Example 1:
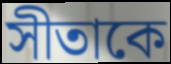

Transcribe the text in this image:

সীতাকে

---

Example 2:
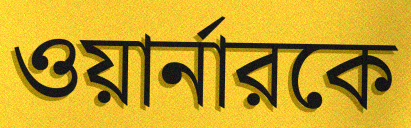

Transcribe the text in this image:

ওয়ার্নারকে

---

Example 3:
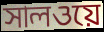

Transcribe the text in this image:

সালওয়ে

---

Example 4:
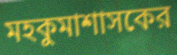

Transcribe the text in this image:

মহকুমাশাসকের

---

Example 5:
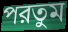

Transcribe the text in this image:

পরতুম